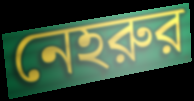
নেহরুর